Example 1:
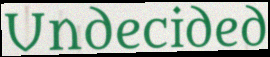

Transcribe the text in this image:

Undecided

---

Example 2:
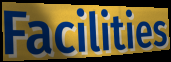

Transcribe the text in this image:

Facilities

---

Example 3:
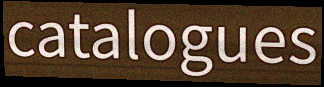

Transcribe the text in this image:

catalogues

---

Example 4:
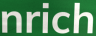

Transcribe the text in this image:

nrich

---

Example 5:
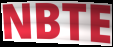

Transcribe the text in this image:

NBTE